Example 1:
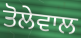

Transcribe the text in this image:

ਤੋਲੇਵਾਲ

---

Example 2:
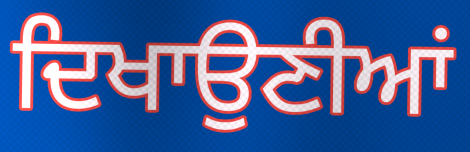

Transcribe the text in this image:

ਦਿਖਾਉਣੀਆਂ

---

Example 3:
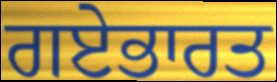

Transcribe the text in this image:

ਗਏਭਾਰਤ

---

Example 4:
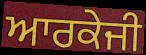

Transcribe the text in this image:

ਆਰਕੇਜੀ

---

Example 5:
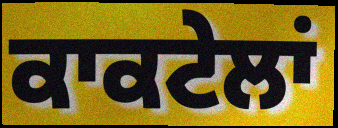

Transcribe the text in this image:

ਕਾਕਟੇਲਾਂ